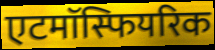
एटमॉस्फियरिक